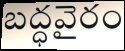
బద్ధవైరం